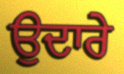
ਉਦਾਰੇ